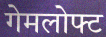
गेमलोफ्ट